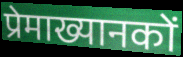
प्रेमाख्यानकों